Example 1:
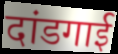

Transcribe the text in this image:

दांडगाई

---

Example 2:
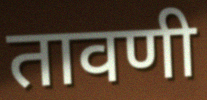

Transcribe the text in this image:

तावणी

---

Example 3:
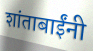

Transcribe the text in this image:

शांताबाईंनी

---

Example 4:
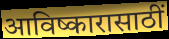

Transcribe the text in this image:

आविष्कारासाठीं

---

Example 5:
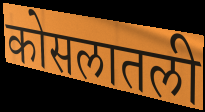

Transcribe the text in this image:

कोसलातली